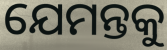
ଯେମନ୍ତକୁ